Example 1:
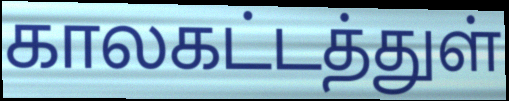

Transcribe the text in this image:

காலகட்டத்துள்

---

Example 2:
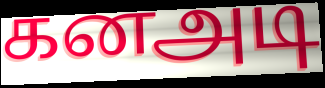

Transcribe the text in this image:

கனஅடி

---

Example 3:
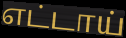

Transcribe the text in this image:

எட்டாய்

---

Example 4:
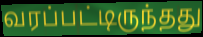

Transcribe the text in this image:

வரப்பட்டிருந்தது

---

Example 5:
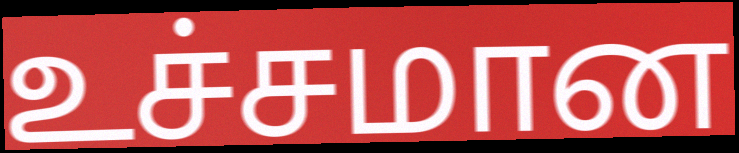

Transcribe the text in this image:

உச்சமான